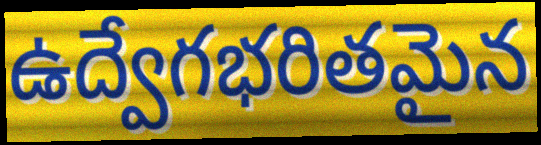
ఉద్వేగభరితమైన